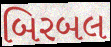
બિરબલ